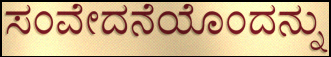
ಸಂವೇದನೆಯೊಂದನ್ನು